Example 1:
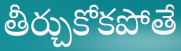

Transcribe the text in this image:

తీర్చుకోకపోతే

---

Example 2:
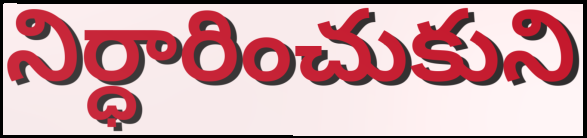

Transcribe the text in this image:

నిర్ధారించుకుని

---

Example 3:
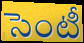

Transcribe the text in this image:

సెంటీ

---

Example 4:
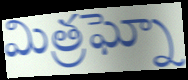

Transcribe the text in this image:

మిత్రఘ్నో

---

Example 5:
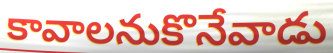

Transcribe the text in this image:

కావాలనుకొనేవాడు